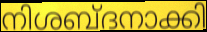
നിശബ്ദനാക്കി